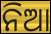
ନିଆ